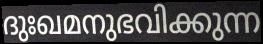
ദുഃഖമനുഭവിക്കുന്ന